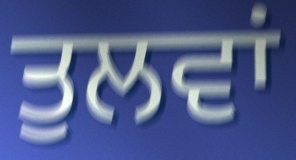
ਤੁਲਵਾਂ